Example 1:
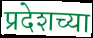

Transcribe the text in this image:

प्रदेशच्या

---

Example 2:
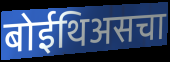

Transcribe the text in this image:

बोईथिअसचा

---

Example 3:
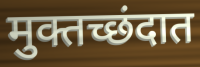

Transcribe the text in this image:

मुक्तच्छंदात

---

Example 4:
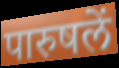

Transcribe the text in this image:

पारुषलें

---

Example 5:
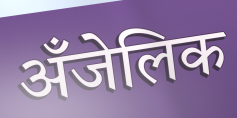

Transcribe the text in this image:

अँजेलिक